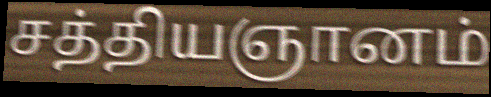
சத்தியஞானம்